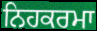
ਨਿਹਕਰਮਾ